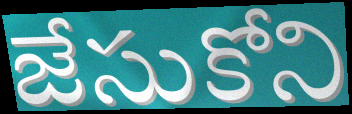
జేసుకోని